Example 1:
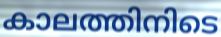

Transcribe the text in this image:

കാലത്തിനിടെ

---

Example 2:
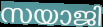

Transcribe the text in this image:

സയാജി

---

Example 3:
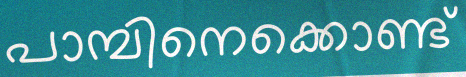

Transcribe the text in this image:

പാമ്പിനെക്കൊണ്ട്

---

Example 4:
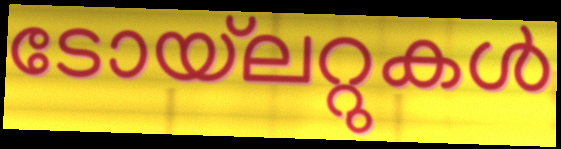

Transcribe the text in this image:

ടോയ്‌ലറ്റുകൾ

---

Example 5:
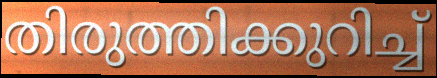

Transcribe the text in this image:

തിരുത്തിക്കുറിച്ച്